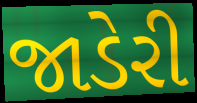
જાડેરી